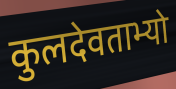
कुलदेवताभ्यो